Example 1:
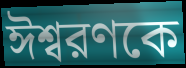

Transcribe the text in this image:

ঈশ্বরণকে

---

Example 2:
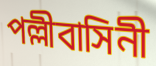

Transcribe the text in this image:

পল্লীবাসিনী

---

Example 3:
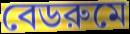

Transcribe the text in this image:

বেডরুমে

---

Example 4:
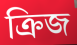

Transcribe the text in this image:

ক্রিজ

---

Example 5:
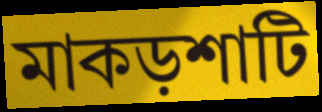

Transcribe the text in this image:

মাকড়শাটি